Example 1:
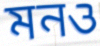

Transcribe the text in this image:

মনও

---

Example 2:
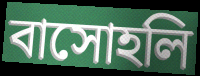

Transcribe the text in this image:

বাসোহলি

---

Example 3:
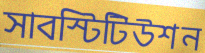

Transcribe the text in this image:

সাবস্টিটিউশন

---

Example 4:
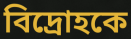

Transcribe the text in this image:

বিদ্রোহকে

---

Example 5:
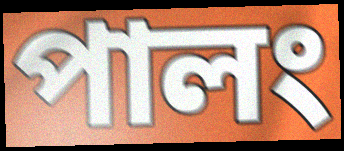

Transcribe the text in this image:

পালং